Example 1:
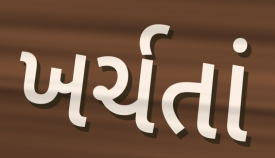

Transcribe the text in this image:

ખર્ચતાં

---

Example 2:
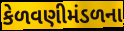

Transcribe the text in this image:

કેળવણીમંડળના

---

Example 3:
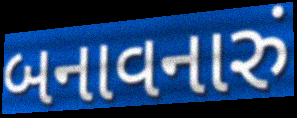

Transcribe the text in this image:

બનાવનારું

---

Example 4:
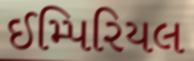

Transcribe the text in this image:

ઈમ્પિરિયલ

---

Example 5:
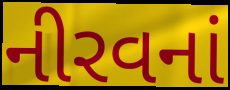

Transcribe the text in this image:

નીરવનાં